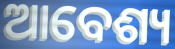
ଆବେଶ୍ୟ